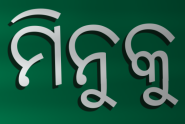
ମିନୁକୁ